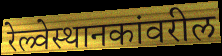
रेल्वेस्थानकांवरील